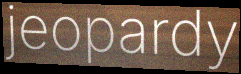
jeopardy